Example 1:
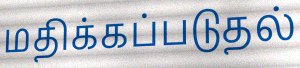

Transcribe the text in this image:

மதிக்கப்படுதல்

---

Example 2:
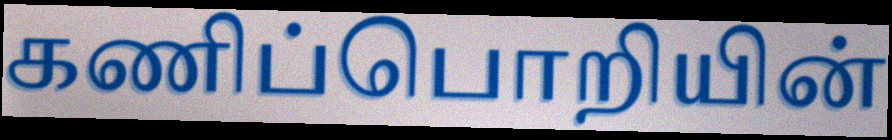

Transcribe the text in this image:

கணிப்பொறியின்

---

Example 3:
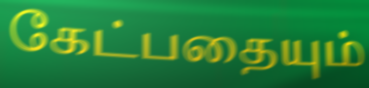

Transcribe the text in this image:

கேட்பதையும்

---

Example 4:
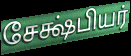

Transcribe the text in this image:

சேக்ஷ்பியர்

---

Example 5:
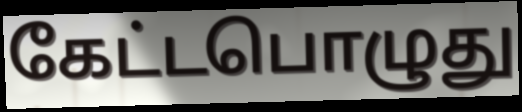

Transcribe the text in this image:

கேட்டபொழுது